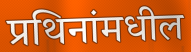
प्रथिनांमधील